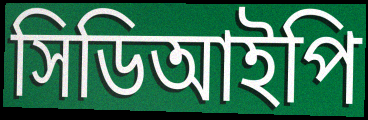
সিডিআইপি